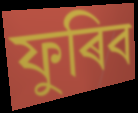
ফুৰিব